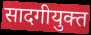
सादगीयुक्त